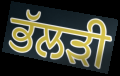
ਭੱਲੜੀ